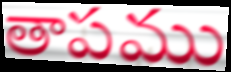
తాపము